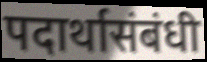
पदार्थासंबंधी